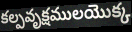
కల్పవృక్షములయొక్క